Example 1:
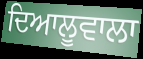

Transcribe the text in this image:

ਦਿਆਲੂਵਾਲਾ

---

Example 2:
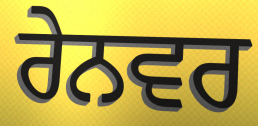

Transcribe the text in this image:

ਰੇਨਵਰ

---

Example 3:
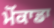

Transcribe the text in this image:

ਮੋਂਕਾਡਾ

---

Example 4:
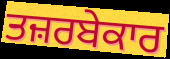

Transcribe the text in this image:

ਤਜ਼ਰਬੇਕਾਰ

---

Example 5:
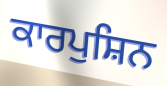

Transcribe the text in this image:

ਕਾਰਪੁਸ਼ਿਨ